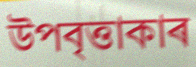
উপবৃত্তাকাৰ